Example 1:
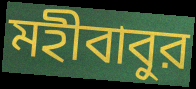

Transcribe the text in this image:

মহীবাবুর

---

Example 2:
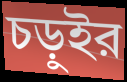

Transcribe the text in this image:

চড়ুইর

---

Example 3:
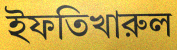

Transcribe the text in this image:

ইফতিখারুল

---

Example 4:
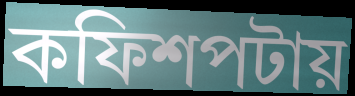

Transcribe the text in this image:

কফিশপটায়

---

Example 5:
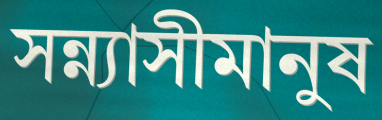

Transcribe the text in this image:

সন্ন্যাসীমানুষ